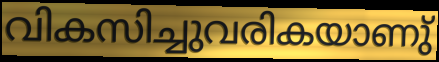
വികസിച്ചുവരികയാണു്